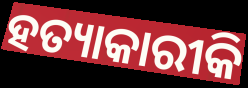
ହତ୍ୟାକାରୀକି